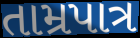
તામ્રપાત્ર